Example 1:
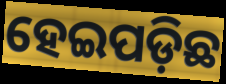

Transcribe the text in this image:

ହେଇପଡ଼ିଛ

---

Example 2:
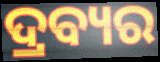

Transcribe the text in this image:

ଦ୍ରବ୍ୟର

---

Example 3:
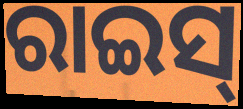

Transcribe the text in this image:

ରାଇସ୍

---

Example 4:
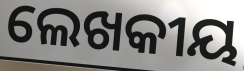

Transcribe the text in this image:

ଲେଖକୀୟ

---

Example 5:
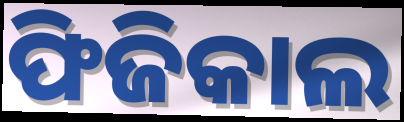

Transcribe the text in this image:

ଫିଜିକାଲ